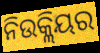
ନିଉକ୍ଲିୟର